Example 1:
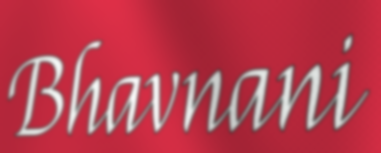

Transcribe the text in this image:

Bhavnani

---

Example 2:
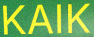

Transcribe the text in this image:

KAIK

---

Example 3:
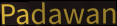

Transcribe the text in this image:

Padawan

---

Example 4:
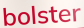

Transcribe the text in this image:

bolster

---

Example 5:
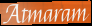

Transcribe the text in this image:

Atmaram